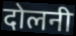
दोलनी